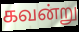
கவன்று